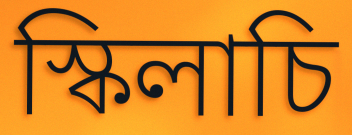
স্কিলাচি